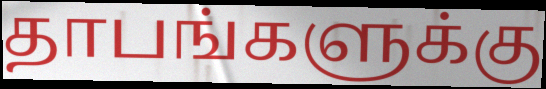
தாபங்களுக்கு